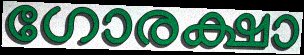
ഗോരക്ഷാ